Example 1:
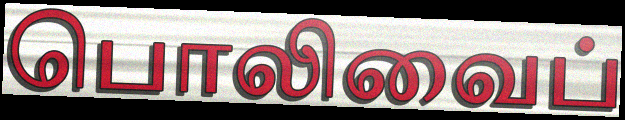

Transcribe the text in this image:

பொலிவைப்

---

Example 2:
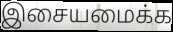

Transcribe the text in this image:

இசையமைக்க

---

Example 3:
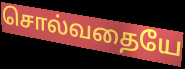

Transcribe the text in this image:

சொல்வதையே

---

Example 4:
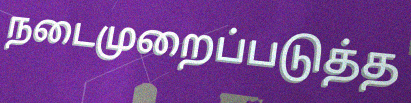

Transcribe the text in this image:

நடைமுறைப்படுத்த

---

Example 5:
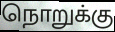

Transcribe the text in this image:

நொறுக்கு